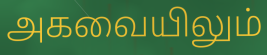
அகவையிலும்